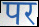
पर